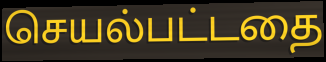
செயல்பட்டதை